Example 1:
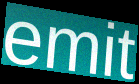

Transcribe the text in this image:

emit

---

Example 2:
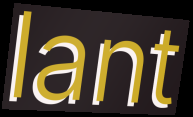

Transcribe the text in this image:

lant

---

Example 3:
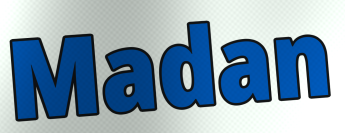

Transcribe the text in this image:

Madan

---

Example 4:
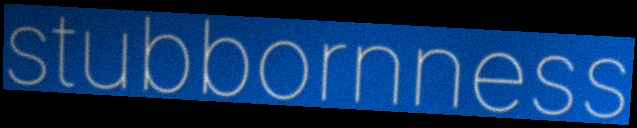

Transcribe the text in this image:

stubbornness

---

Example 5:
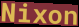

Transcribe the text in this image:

Nixon